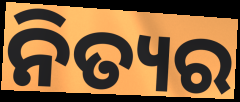
ନିତ୍ୟର